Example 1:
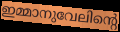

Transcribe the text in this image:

ഇമ്മാനുവേലിന്റെ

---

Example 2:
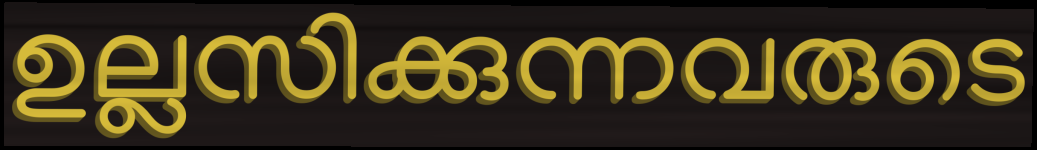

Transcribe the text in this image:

ഉല്ലസിക്കുന്നവരുടെ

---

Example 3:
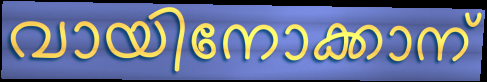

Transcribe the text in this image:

വായിനോക്കാന്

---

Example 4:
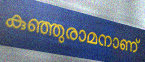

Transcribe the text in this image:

കുഞ്ഞുരാമനാണ്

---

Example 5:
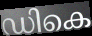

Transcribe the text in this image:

ഡികെ